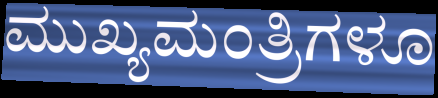
ಮುಖ್ಯಮಂತ್ರಿಗಳೂ